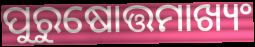
ପୁରୁଷୋତ୍ତମାଖ୍ୟଂ